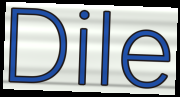
Dile